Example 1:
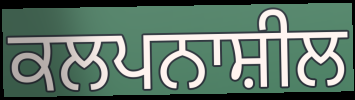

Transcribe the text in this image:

ਕਲਪਨਾਸ਼ੀਲ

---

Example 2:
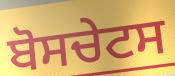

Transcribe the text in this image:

ਬੋਸਚੇਟਸ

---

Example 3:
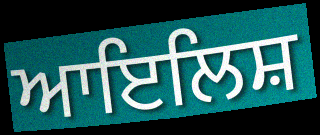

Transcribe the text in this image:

ਆਇਲਿਸ਼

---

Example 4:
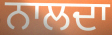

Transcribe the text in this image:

ਨਾਲਦਾ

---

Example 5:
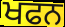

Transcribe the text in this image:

ਖਫਨ